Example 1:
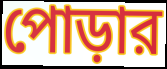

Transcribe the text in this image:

পোড়ার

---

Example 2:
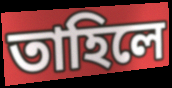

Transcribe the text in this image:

তাহিলে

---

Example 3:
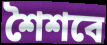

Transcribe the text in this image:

শৈশবে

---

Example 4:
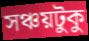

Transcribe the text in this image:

সঞ্চয়টুকু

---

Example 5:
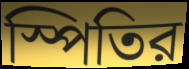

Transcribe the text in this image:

স্পিতির